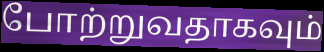
போற்றுவதாகவும்